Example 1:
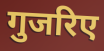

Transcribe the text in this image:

गुजरिए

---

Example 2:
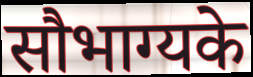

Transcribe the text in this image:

सौभाग्यके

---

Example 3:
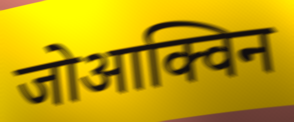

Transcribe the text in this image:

जोआक्विन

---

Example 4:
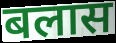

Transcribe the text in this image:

बलास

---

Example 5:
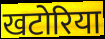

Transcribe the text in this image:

खटोरिया